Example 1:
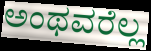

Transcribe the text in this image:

ಅಂಥವರೆಲ್ಲ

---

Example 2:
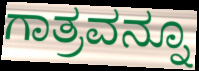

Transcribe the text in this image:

ಗಾತ್ರವನ್ನೂ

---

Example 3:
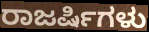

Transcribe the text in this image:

ರಾಜರ್ಷಿಗಳು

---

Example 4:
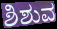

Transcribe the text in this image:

ಶಿಶುವ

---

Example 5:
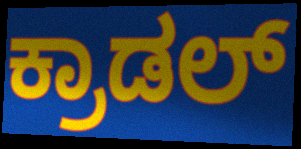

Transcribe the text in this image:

ಕ್ರಾಡಲ್